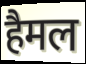
हैमल